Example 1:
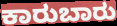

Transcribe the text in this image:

ಕಾರುಬಾರು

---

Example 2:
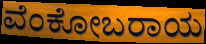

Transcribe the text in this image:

ವೆಂಕೋಬರಾಯ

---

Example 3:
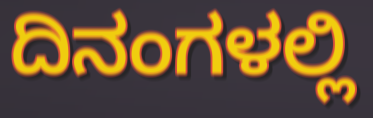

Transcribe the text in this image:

ದಿನಂಗಳಲ್ಲಿ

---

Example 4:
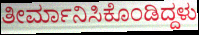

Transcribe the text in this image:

ತೀರ್ಮಾನಿಸಿಕೊಂಡಿದ್ದಳು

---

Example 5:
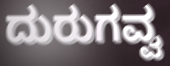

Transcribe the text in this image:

ದುರುಗವ್ವ